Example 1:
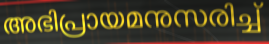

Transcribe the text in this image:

അഭിപ്രായമനുസരിച്ച്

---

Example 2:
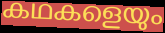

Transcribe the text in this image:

കഥകളെയും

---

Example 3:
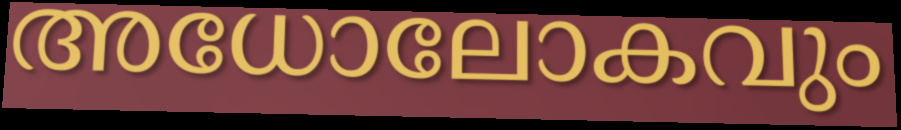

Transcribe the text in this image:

അധോലോകവും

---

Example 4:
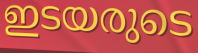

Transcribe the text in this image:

ഇടയരുടെ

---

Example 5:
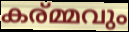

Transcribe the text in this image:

കര്മ്മവും